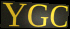
YGC